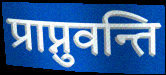
प्राप्नुवन्ति